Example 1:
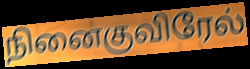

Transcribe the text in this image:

நினைகுவிரேல்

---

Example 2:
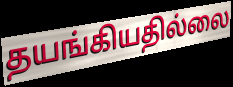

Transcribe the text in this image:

தயங்கியதில்லை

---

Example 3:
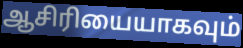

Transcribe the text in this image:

ஆசிரியையாகவும்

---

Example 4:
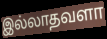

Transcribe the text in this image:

இல்லாதவளா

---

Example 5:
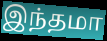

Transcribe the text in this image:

இந்தமா